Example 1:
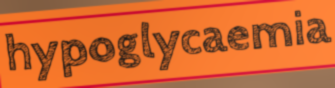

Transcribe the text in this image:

hypoglycaemia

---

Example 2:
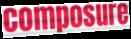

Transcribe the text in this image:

composure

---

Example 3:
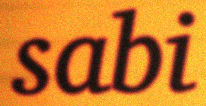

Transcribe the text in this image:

sabi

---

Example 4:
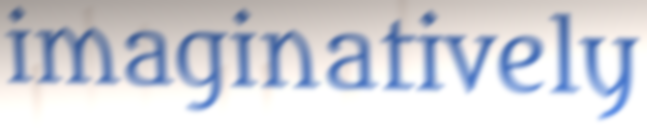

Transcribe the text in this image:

imaginatively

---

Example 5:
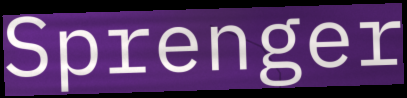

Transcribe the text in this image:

Sprenger